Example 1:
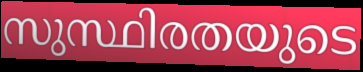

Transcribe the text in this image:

സുസ്ഥിരതയുടെ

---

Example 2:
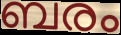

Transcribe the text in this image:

ബരം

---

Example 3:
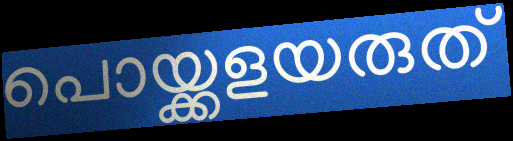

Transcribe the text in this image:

പൊയ്ക്കളയരുത്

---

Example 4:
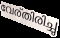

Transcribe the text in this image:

വേര്തിരിച്ചു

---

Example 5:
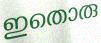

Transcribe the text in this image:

ഇതൊരു